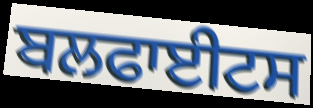
ਬਲਫਾਈਟਸ